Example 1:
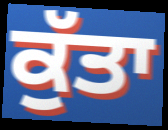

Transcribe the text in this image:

ਕੁੱਤਾ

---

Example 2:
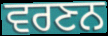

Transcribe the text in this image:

ਵਰਣਨ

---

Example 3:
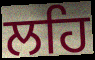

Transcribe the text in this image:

ਲਹਿ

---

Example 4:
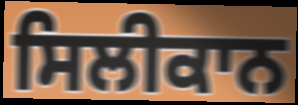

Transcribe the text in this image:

ਸਿਲੀਕਾਨ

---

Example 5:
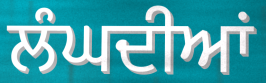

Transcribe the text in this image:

ਲੰਘਦੀਆਂ